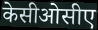
केसीओसीए